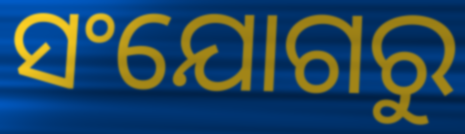
ସଂଯୋଗରୁ